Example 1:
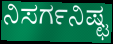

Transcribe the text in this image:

ನಿಸರ್ಗನಿಷ್ಟ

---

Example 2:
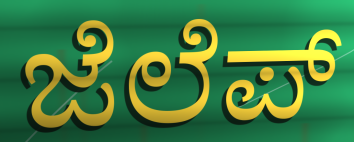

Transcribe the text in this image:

ಜೆಲೆಪ್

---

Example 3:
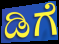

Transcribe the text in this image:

ಡಿಗೆ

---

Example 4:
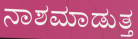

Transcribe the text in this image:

ನಾಶಮಾಡುತ್ತ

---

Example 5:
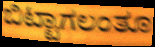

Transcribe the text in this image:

ಬಿಟ್ಟಾಗಲಂತೂ